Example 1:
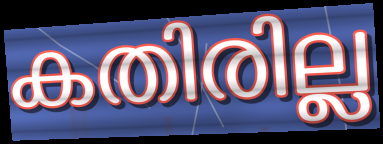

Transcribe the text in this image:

കതിരില്ല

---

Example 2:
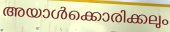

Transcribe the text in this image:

അയാൾക്കൊരിക്കലും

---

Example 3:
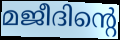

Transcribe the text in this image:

മജീദിന്റെ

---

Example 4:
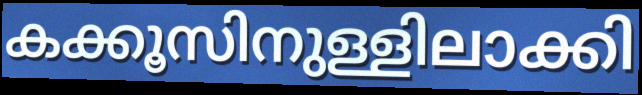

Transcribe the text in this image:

കക്കൂസിനുള്ളിലാക്കി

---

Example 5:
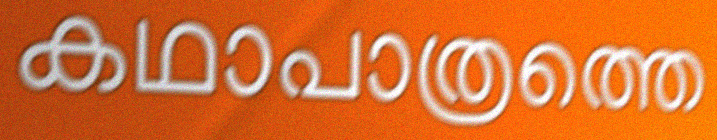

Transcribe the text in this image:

കഥാപാത്രത്തെ